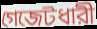
গেজেটধারী